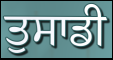
ਤੁਸਾਡੀ